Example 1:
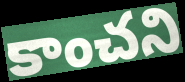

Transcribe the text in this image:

కాంచని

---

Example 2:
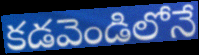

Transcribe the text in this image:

కడవెండిలోనే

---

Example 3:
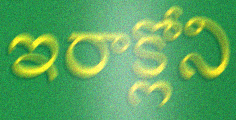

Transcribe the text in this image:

ఇరాక్లోని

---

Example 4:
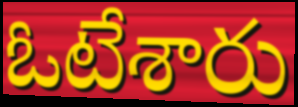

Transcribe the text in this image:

ఓటేశారు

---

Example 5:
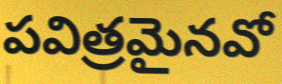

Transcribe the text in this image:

పవిత్రమైనవో